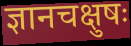
ज्ञानचक्षुषः